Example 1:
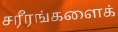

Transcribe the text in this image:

சரீரங்களைக்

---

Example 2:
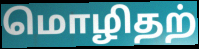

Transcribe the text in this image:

மொழிதற்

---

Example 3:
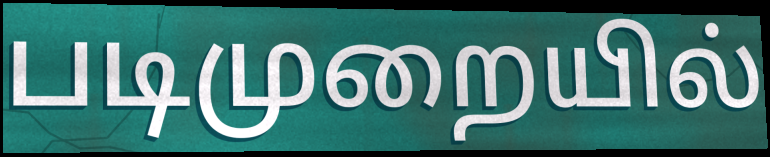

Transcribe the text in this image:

படிமுறையில்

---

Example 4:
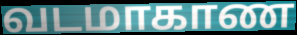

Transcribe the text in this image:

வடமாகாண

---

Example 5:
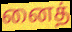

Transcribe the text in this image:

னைத்